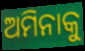
ଅମିନାକୁ